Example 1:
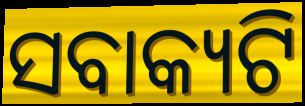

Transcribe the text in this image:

ସବାକ୍ୟଟି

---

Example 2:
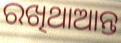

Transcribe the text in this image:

ରଖିଥାଆନ୍ତ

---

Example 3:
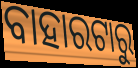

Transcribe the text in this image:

ବାହାରଟାରୁ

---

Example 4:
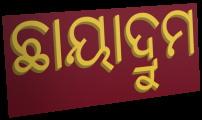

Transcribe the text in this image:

ଛାୟାଦ୍ରୁମ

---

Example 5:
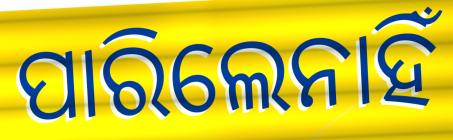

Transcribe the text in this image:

ପାରିଲେନାହିଁ